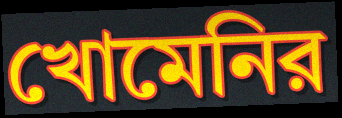
খোমেনির